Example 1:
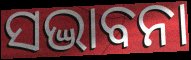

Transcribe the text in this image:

ସଦ୍ଭାବନା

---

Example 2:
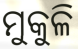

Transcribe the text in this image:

ମୁକୁଳି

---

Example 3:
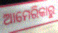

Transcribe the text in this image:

ଆମେରିକାରୁ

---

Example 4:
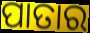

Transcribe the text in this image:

ପାତାର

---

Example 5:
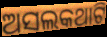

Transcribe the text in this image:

ଅସଲକଥାଟି